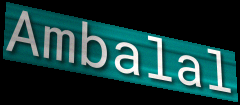
Ambalal